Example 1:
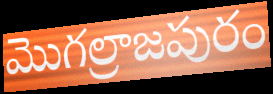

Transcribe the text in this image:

మొగల్రాజపురం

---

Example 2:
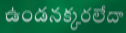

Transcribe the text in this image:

ఉండనక్కరలేదా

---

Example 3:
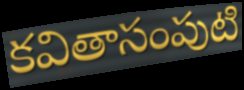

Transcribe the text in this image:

కవితాసంపుటి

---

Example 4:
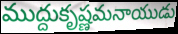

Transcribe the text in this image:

ముద్దుకృష్ణమనాయుడు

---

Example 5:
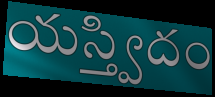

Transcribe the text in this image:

యస్త్విదం